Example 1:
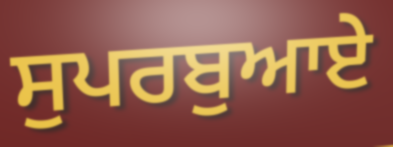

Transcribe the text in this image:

ਸੁਪਰਬੁਆਏ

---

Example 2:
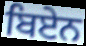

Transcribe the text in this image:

ਬਿਏਨ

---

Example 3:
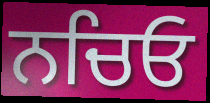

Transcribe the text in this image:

ਨਚਿਓ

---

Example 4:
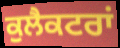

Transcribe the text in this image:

ਕੁਲੈਕਟਰਾਂ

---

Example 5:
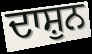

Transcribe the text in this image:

ਦਾਸ਼ੁਨ